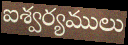
ఐశ్వర్యములు